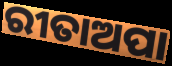
ରୀତାଅପା